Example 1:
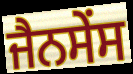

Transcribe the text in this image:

ਜੈਨਸੇਂਸ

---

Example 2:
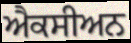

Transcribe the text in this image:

ਐਕਸੀਅਨ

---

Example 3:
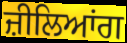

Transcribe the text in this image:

ਜ਼ੀਲਿਆਂਗ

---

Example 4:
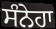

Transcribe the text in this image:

ਸੰਨੇਹਾ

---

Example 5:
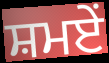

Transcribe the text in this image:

ਸ਼ਮਏਂ